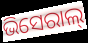
ଭିସେରାଲ୍